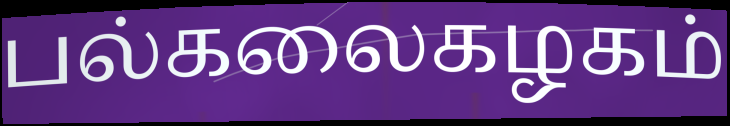
பல்கலைகழகம்